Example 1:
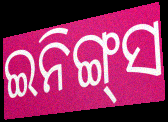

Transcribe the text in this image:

ଇନିଙ୍ଗ୍‌ସ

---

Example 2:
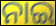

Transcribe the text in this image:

ନାଇ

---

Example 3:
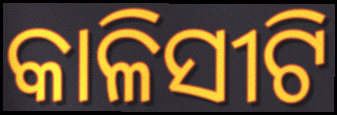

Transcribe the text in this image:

କାଳିସୀଟି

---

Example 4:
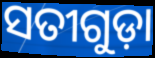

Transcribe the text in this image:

ସତୀଗୁଡ଼ା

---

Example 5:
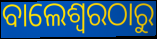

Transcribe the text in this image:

ବାଲେଶ୍ବରଠାରୁ